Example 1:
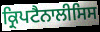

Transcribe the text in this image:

ਕ੍ਰਿਪਟੈਨਾਲੀਸਿਸ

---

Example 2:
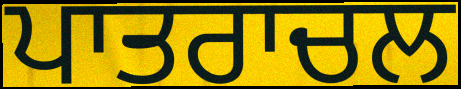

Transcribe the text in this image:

ਪਾਤਰਾਚਲ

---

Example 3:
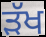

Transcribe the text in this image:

ੜੱਖ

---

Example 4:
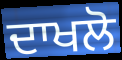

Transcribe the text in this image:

ਦਾਖਲੋ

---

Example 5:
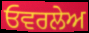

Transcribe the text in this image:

ਓਵਰਲੇਅ